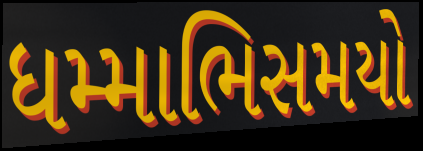
ધમ્માભિસમયો